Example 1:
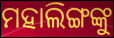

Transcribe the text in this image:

ମହାଲିଙ୍ଗଙ୍କୁ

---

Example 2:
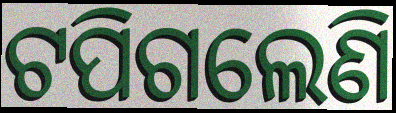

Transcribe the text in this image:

ଟପିଗଲେଣି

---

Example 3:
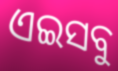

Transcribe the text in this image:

ଏଇସବୁ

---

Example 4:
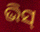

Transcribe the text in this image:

ଭିସ୍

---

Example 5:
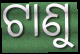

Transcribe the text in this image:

ଟାଣୁ